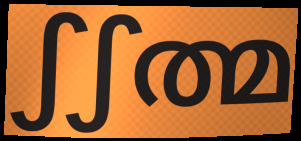
ഽഽത്മ